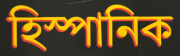
হিস্পানিক